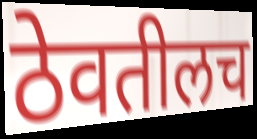
ठेवतीलच